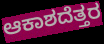
ಆಕಾಶದೆತ್ತರ